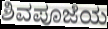
ಶಿವಪೂಜೆಯ